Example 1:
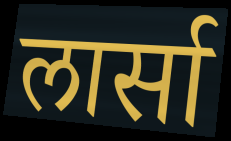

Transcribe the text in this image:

लार्सा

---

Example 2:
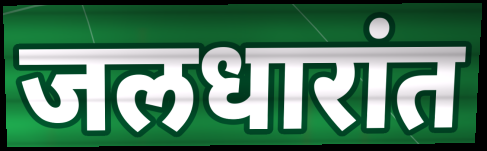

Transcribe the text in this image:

जलधारांत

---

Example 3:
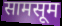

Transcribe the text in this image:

सामसूम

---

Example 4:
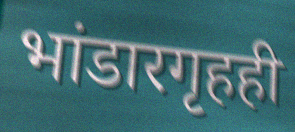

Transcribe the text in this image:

भांडारगृहही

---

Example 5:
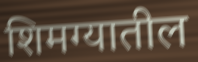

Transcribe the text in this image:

शिमग्यातील